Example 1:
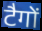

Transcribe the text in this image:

टैगों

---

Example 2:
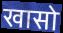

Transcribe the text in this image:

खासो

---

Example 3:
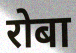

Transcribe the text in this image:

रोबा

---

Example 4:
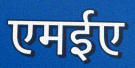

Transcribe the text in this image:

एमईए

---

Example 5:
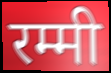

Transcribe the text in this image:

रम्मी